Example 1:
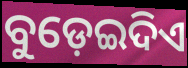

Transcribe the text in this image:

ବୁଡ଼େଇଦିଏ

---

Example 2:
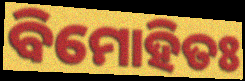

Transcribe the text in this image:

ବିମୋହିତଃ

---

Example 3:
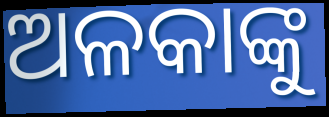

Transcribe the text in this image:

ଅଳକାଙ୍କୁ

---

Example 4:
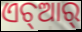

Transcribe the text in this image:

ଏଚ୍ଆର୍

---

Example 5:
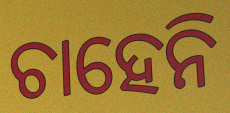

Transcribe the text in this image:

ଚାହେନି